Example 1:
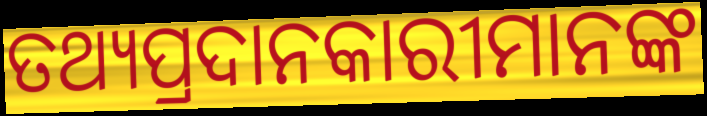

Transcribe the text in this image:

ତଥ୍ୟପ୍ରଦାନକାରୀମାନଙ୍କ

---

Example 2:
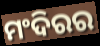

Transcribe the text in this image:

ମଂଦିରର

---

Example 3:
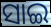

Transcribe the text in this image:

ସାଇ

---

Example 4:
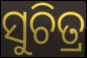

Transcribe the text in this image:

ସୁଚିତ୍ର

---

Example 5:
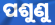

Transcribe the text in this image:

ପଶୁଣୁ